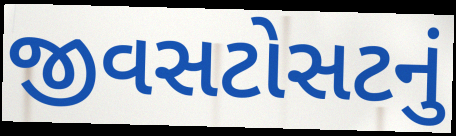
જીવસટોસટનું